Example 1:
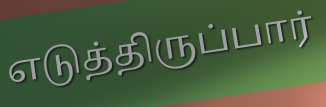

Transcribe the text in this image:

எடுத்திருப்பார்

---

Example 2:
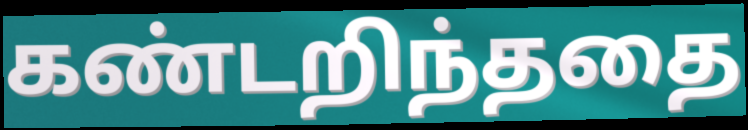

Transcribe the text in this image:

கண்டறிந்ததை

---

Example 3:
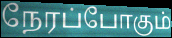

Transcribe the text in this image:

நேரப்போகும்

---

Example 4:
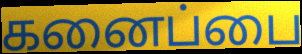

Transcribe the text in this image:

கனைப்பை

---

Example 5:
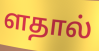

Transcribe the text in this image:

ளதால்